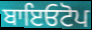
ਬਾਇਓਟੋਪ